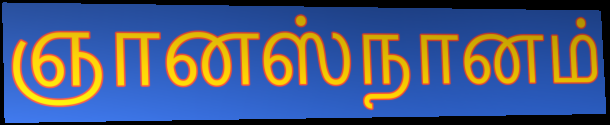
ஞானஸ்நானம்